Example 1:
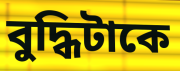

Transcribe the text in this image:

বুদ্ধিটাকে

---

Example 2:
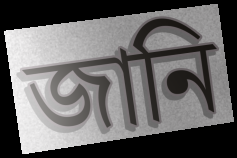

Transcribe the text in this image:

জানি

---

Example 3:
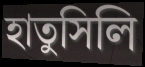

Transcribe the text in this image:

হাতুসিলি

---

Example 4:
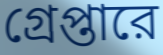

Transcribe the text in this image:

গ্রেপ্তারে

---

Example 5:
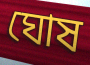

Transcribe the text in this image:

ঘোষ